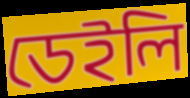
ডেইলি